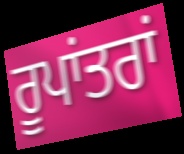
ਰੂਪਾਂਤਰਾਂ